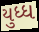
યુધ્ધ